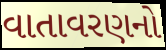
વાતાવરણનો